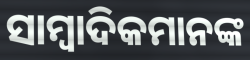
ସାମ୍ବାଦିକମାନଙ୍କ